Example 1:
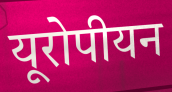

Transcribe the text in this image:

यूरोपीयन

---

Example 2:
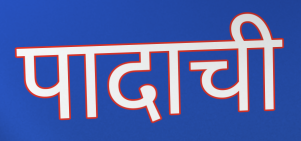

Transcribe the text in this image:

पादाची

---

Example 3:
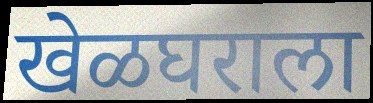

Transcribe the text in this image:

खेळघराला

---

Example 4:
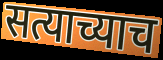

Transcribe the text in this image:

सत्याच्याच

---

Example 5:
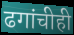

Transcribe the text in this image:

ढगांचीही